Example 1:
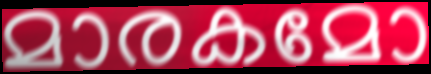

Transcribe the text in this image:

മാരകമോ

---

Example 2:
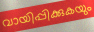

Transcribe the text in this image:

വായിപ്പിക്കുകയും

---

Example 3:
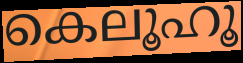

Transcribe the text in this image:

കെലൂഹൂ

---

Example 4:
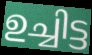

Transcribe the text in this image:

ഉച്ചിട്ട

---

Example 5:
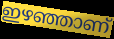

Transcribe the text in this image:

ഇഴഞ്ഞാണ്